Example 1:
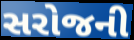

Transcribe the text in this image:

સરોજની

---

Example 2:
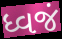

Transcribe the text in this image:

ધ્વજં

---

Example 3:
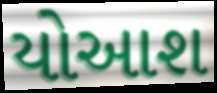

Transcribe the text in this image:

યોઆશ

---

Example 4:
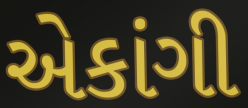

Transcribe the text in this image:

એકાંગી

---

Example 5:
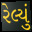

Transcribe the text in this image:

રેલ્યું